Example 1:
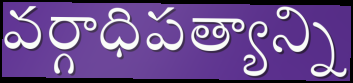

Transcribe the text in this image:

వర్గాధిపత్యాన్ని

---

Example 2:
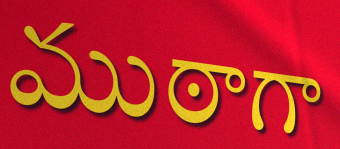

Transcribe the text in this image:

ముఠాగా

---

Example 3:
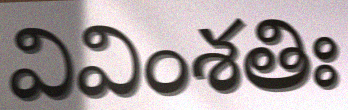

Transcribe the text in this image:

వివింశతిః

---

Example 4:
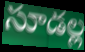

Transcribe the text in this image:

సూడల్ల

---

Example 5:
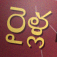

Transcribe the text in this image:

రైళ్ల